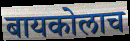
बायकोलाच